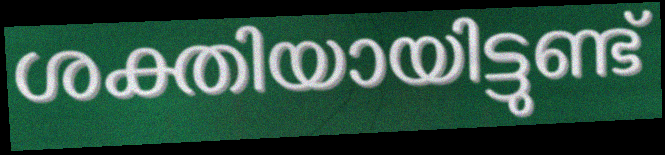
ശക്തിയായിട്ടുണ്ട്